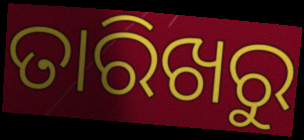
ତାରିଖରୁ